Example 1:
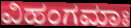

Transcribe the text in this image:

ವಿಹಂಗಮಾಃ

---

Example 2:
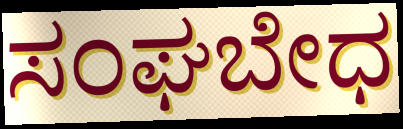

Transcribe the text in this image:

ಸಂಘಬೇಧ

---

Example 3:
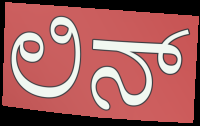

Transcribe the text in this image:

ಲಿನ್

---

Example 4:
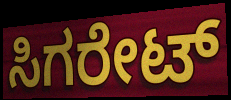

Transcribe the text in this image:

ಸಿಗರೇಟ್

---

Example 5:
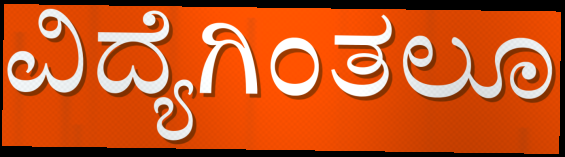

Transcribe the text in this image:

ವಿದ್ಯೆಗಿಂತಲೂ